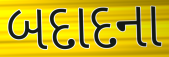
બદાદના